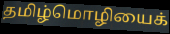
தமிழ்மொழியைக்